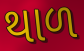
થાળ